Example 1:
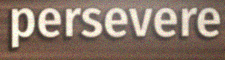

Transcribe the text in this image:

persevere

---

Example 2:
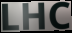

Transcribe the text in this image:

LHC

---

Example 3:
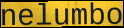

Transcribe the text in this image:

nelumbo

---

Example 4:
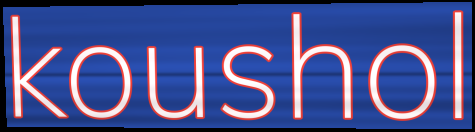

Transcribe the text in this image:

koushol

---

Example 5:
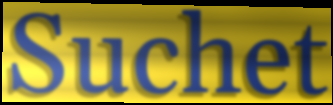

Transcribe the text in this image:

Suchet